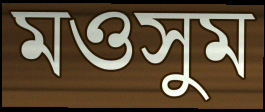
মওসুম